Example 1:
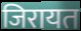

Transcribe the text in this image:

जिरायत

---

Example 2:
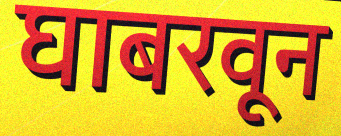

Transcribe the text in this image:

घाबरवून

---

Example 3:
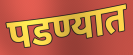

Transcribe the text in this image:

पडण्यात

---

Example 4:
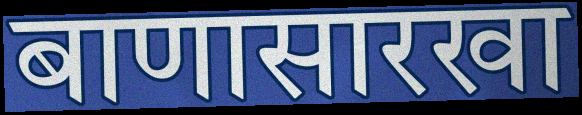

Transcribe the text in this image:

बाणासारखा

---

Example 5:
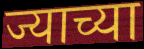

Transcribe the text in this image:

ज्याच्या